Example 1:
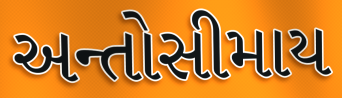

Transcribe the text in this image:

અન્તોસીમાય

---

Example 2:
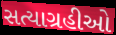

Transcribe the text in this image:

સત્યાગ્રહીઓ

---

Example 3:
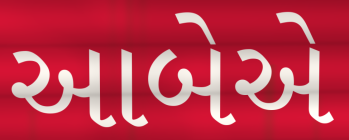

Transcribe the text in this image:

આબેએ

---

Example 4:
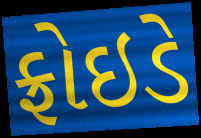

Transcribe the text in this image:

ફ્રોઇડે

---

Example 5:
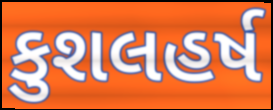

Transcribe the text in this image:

કુશલહર્ષ